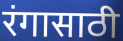
रंगासाठी